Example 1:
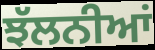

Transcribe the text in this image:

ਝੱਲਨੀਆਂ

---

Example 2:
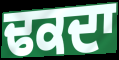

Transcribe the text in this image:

ਢਕਦਾ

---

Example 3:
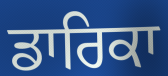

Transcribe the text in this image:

ਡਾਰਿਕਾ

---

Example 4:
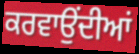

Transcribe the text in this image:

ਕਰਵਾਉਂਦੀਆਂ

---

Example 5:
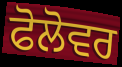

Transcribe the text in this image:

ਫੋਲੋਵਰ